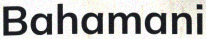
Bahamani